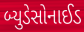
બ્યુડેસોનાઈડ